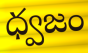
ధ్వజం